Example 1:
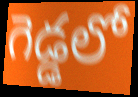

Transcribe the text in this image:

గెడ్డలో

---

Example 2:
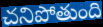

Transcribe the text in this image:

చనిపోతుంది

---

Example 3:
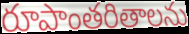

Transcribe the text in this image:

రూపాంతరితాలను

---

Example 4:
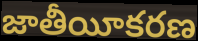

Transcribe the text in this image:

జాతీయీకరణ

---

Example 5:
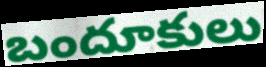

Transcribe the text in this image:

బందూకులు